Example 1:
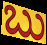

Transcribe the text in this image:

ಬು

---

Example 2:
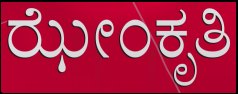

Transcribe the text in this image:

ಝೇಂಕೃತಿ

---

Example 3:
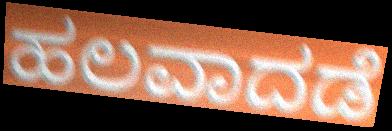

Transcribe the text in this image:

ಹಲವಾದಡೆ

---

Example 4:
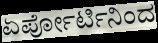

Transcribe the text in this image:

ಏರ್ಪೋರ್ಟಿನಿಂದ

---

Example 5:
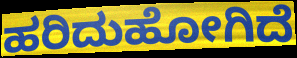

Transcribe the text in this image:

ಹರಿದುಹೋಗಿದೆ